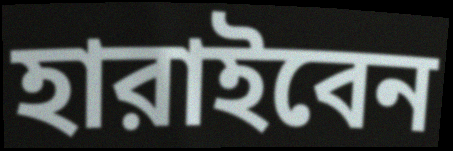
হারাইবেন